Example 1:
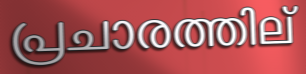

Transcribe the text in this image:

പ്രചാരത്തില്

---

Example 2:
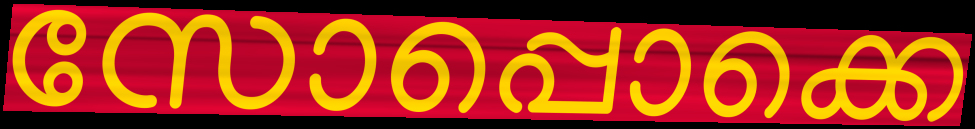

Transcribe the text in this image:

സോപ്പൊക്കെ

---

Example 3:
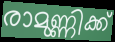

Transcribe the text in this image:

രാമുണ്ണിക്ക്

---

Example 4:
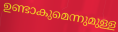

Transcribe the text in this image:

ഉണ്ടാകുമെന്നുമുള്ള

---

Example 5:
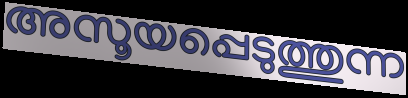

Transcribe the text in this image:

അസൂയപ്പെടുത്തുന്ന